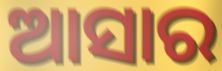
ଆସାର